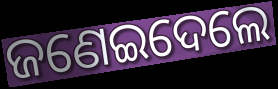
ଜଣେଇଦେଲେ